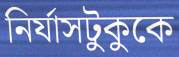
নির্যাসটুকুকে